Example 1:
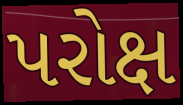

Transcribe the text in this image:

પરોક્ષ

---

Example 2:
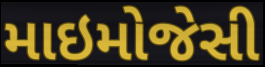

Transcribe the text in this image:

માઇમોજેસી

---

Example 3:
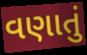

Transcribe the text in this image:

વણાતું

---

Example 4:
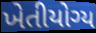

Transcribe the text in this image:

ખેતીયોગ્ય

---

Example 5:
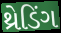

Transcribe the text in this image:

થ્રેડિંગ